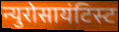
न्युरोसायंटिस्ट